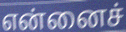
என்னைச்